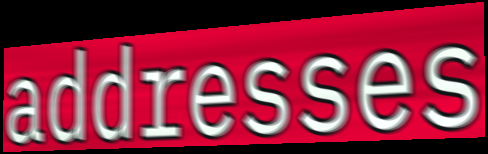
addresses